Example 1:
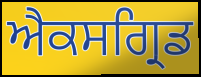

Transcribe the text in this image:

ਐਕਸਗ੍ਰਿਡ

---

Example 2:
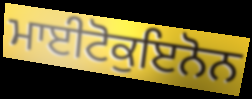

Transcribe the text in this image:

ਮਾਈਟੋਕੁਇਨੋਨ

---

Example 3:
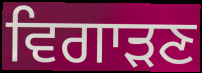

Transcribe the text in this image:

ਵਿਗਾੜਣ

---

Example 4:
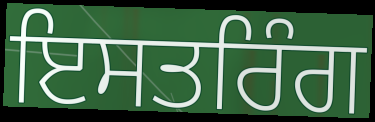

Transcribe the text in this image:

ਇਸਤਰਿੰਗ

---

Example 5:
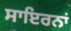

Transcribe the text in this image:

ਸਾਇਰਨਾਂ